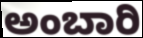
ಅಂಬಾರಿ